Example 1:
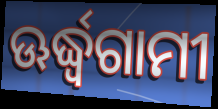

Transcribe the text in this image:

ଊର୍ଦ୍ଧ୍ୱଗାମୀ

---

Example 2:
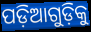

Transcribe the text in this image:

ପଡ଼ିଆଗୁଡ଼ିକୁ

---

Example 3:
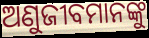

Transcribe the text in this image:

ଅଣୁଜୀବମାନଙ୍କୁ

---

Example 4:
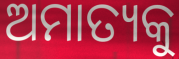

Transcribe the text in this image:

ଅମାତ୍ୟକୁ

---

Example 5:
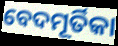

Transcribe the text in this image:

ବେଦମୂର୍ତିକା